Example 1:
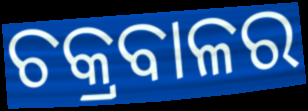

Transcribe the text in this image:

ଚକ୍ରବାଳର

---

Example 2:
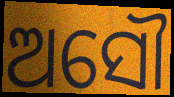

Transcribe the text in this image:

ଅସୌ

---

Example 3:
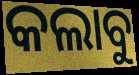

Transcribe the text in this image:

କଲାବୁ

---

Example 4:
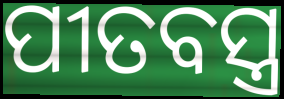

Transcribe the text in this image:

ପୀତବସ୍ତ୍ର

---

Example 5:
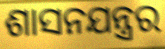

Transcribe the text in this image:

ଶାସନଯନ୍ତ୍ରର